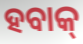
ହବାକ୍